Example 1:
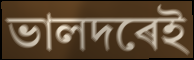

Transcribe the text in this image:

ভালদৰেই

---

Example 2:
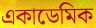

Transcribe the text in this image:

একাডেমিক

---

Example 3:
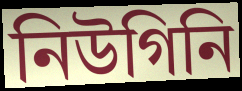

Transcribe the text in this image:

নিউগিনি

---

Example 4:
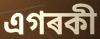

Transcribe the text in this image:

এগৰকী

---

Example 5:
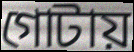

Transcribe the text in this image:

গোটায়